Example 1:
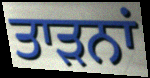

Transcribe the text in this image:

ਤਾੜਨਾਂ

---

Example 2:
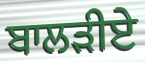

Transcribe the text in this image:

ਬਾਲੜੀਏ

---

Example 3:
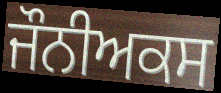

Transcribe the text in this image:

ਜੌਨੀਅਕਸ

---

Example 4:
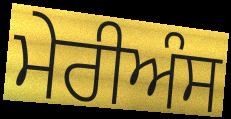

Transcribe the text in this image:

ਮੇਰੀਅੰਸ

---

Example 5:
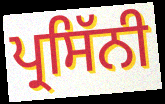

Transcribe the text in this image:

ਪ੍ਰਸਿੱਨੀ